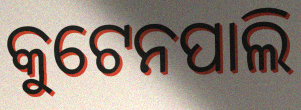
କୁଟେନପାଲି